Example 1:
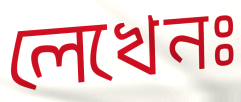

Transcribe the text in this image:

লেখেনঃ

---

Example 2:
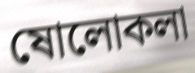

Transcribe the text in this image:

ষোলোকলা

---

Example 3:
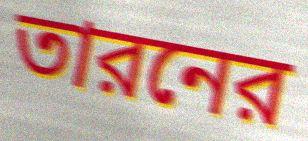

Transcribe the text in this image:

তারনের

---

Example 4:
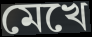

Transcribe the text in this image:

মেখে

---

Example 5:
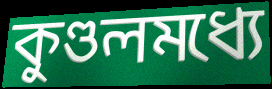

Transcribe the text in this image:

কুণ্ডলমধ্যে